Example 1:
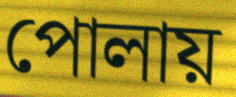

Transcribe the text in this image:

পোলায়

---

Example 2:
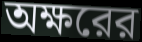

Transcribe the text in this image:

অক্ষরের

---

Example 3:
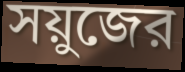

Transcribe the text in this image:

সয়ুজের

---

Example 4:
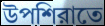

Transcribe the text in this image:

উপশিরাতে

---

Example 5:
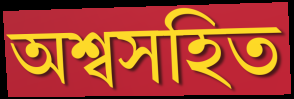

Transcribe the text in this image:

অশ্বসহিত